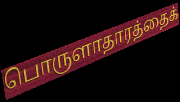
பொருளாதாரத்தைக்